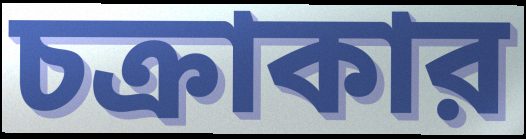
চক্রাকার